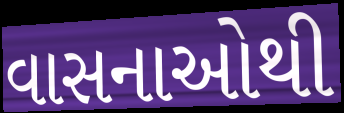
વાસનાઓથી